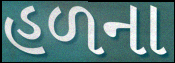
હળના